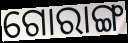
ଗୋରାଙ୍ଗ